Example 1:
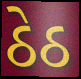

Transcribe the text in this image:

ઠેઠ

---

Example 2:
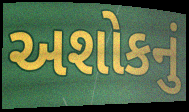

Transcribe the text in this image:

અશોકનું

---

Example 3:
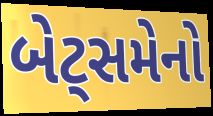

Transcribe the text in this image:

બેટ્સમેનો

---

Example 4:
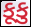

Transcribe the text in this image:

કૂકુ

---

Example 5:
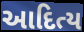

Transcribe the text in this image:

આદિત્ય